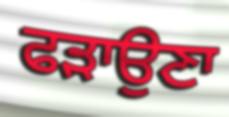
ਫੜਾਉਣਾ